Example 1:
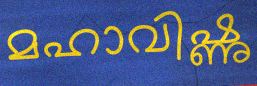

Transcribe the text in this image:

മഹാവിഷ്ണു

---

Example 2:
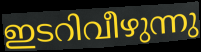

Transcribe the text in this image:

ഇടറിവീഴുന്നു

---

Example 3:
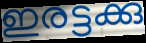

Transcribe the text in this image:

ഇരട്ടക്കു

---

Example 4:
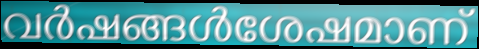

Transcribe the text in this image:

വർഷങ്ങൾശേഷമാണ്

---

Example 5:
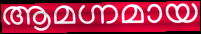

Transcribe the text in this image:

ആമഗ്നമായ